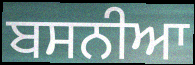
ਬਸਨੀਆ